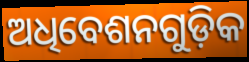
ଅଧିବେଶନଗୁଡ଼ିକ